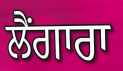
ਲੈਂਗਾਰਾ